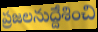
ప్రజలనుద్దేశించి